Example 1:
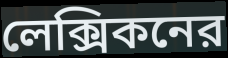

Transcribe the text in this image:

লেক্সিকনের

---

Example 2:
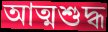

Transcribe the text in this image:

আত্মশুদ্ধ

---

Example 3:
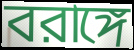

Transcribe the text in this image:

বরাঙ্গে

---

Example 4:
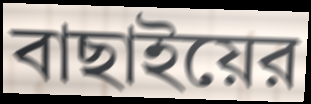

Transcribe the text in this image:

বাছাইয়ের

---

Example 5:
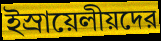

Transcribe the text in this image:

ইস্রায়েলীয়দের